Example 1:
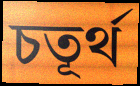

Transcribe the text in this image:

চতূর্থ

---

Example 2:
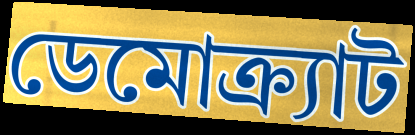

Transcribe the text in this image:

ডেমোক্র্যাট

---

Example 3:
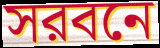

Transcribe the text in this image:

সরবনে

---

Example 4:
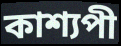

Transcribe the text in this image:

কাশ্যপী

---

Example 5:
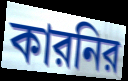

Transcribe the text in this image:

কারনির